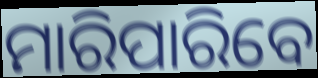
ମାରିପାରିବେ